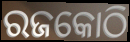
ରଜକୋଠି